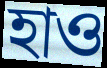
হাও